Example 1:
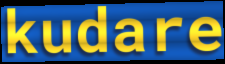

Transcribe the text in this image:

kudare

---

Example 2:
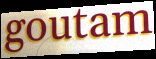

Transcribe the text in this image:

goutam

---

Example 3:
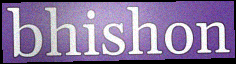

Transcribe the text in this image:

bhishon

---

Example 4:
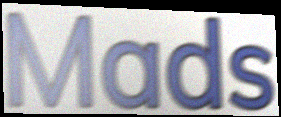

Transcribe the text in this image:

Mads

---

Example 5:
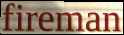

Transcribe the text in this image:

fireman